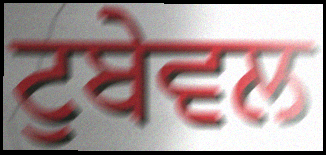
ਟੁਬੇਵਲ